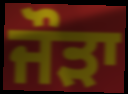
ਜੌੜਾ